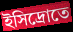
ইসিদ্রোতে